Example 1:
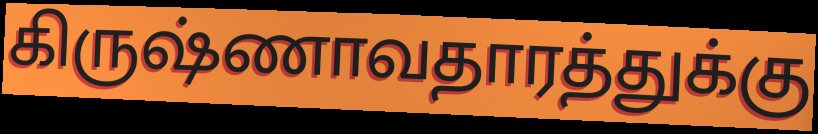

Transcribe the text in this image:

கிருஷ்ணாவதாரத்துக்கு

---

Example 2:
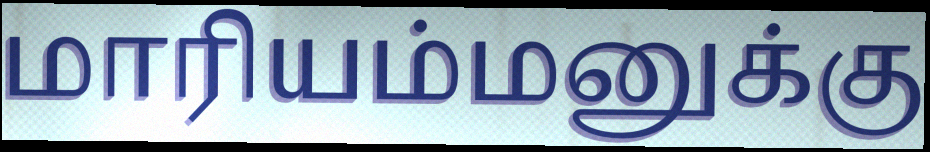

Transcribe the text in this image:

மாரியம்மனுக்கு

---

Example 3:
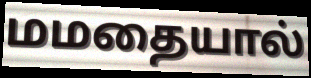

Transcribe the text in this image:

மமதையால்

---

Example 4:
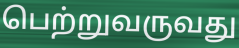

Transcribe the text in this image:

பெற்றுவருவது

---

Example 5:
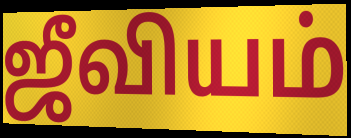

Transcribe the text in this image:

ஜீவியம்